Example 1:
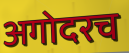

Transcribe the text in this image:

अगोदरच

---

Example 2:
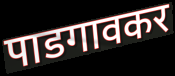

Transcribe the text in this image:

पाडगावकर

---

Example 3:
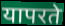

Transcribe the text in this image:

यापरते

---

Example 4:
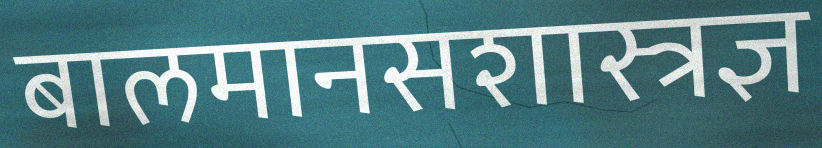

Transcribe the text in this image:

बालमानसशास्त्रज्ञ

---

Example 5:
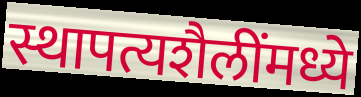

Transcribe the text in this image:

स्थापत्यशैलींमध्ये